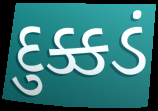
દુક્કડં